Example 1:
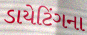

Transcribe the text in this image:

ડાયેટિંગના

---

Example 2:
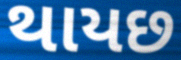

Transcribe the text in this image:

થાયછ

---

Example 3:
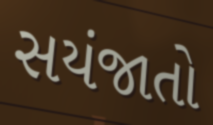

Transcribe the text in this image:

સયંજાતો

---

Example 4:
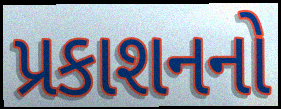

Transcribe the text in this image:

પ્રકાશનનો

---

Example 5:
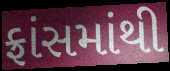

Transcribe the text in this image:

ફ્રાંસમાંથી